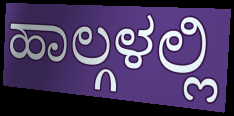
ಹಾಲ್ಗಳಲ್ಲಿ